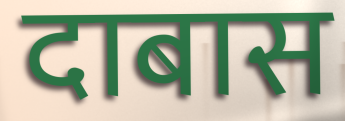
दाबास